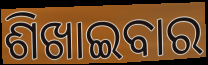
ଶିଖାଇବାର